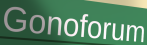
Gonoforum